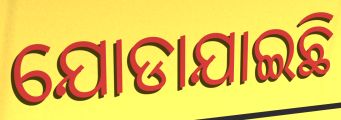
ଯୋଡାଯାଇଛି